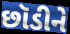
છૉડીને